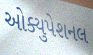
ઓક્યુપેશનલ